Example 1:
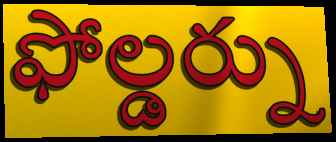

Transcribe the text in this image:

ఫోల్డర్ను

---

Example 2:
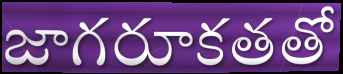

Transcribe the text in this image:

జాగరూకతతో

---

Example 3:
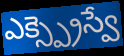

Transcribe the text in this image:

ఎక్స్ప్రెస్వే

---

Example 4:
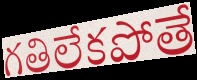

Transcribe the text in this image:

గతిలేకపోతే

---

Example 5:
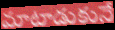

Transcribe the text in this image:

మాటాడుకునే